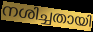
നശിച്ചതായി